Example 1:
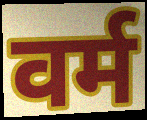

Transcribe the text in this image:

वर्म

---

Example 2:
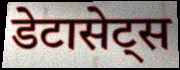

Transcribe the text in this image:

डेटासेट्स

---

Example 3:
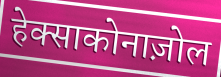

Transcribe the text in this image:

हेक्साकोनाज़ोल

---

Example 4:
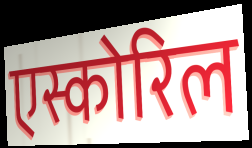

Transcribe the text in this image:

एस्कोरिल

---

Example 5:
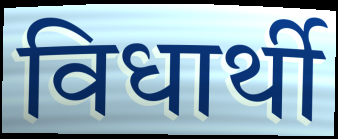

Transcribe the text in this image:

विधार्थी